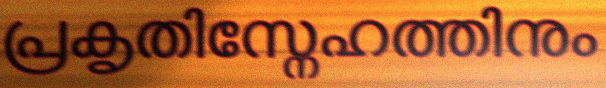
പ്രകൃതിസ്നേഹത്തിനും